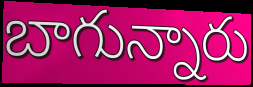
బాగున్నారు